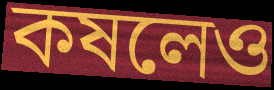
কষলেও